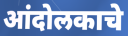
आंदोलकाचे